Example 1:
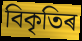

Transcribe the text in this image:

বিকৃতিৰ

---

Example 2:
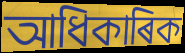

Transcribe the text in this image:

আধিকাৰিক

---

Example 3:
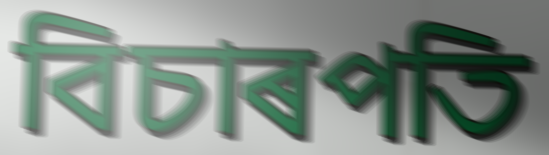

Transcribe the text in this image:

বিচাৰপতি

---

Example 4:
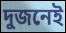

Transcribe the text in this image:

দুজনেই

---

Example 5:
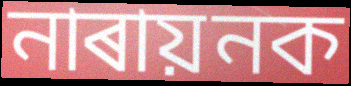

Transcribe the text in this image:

নাৰায়নক